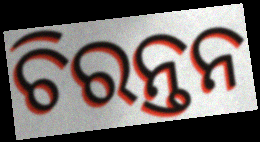
ଚିରନ୍ତନ